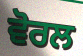
ਵੋਰਲ